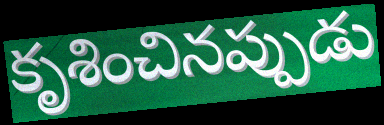
కృశించినప్పుడు